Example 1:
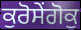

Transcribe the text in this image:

ਕੁਰੋਸੇਂਗੋਕੁ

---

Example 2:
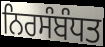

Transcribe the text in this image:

ਨਿਰਸੰਬੰਧਤ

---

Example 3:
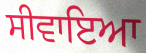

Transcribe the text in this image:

ਸੀਵਾਇਆ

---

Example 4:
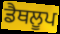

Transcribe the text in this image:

ਡੈਥਲੂਪ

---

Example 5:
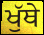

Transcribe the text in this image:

ਖੁੱਥੇ